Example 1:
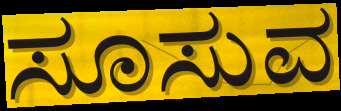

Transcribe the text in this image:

ಸೂಸುವ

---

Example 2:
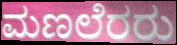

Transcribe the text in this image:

ಮಣಲೆರರು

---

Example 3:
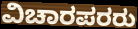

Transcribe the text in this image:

ವಿಚಾರಪರರು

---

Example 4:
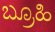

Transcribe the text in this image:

ಬ್ರೂಹಿ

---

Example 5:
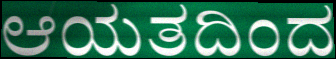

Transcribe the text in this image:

ಆಯತದಿಂದ